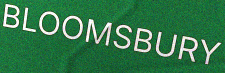
BLOOMSBURY